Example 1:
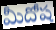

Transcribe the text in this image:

మీదోష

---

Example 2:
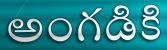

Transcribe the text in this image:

అంగడికి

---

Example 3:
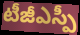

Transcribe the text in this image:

టీజీఎస్పీ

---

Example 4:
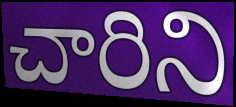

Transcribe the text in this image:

చారిని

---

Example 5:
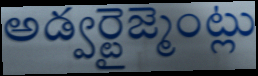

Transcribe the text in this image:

అడ్వర్టైజ్మెంట్లు